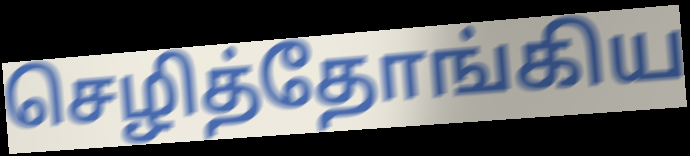
செழித்தோங்கிய